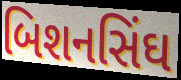
બિશનસિંઘ